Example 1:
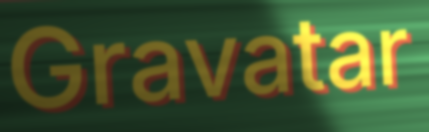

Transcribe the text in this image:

Gravatar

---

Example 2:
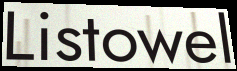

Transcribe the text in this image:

Listowel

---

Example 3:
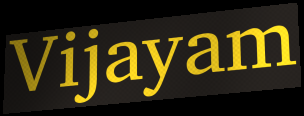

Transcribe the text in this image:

Vijayam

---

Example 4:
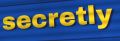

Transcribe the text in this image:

secretly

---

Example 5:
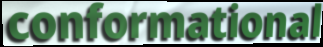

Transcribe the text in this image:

conformational